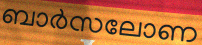
ബാർസലോണ